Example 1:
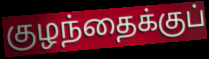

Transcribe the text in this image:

குழந்தைக்குப்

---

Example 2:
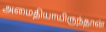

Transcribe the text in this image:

அமைதியாயிருந்தான்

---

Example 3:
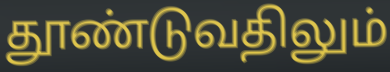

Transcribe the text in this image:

தூண்டுவதிலும்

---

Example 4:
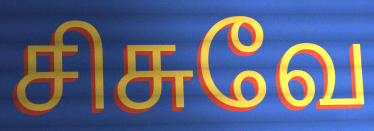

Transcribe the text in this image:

சிசுவே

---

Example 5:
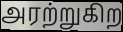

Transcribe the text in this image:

அரற்றுகிற